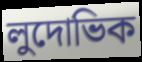
লুদোভিক